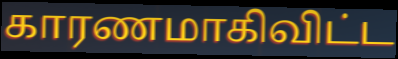
காரணமாகிவிட்ட